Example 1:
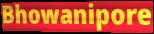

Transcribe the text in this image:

Bhowanipore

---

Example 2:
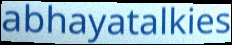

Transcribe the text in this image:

abhayatalkies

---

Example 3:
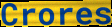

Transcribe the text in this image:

Crores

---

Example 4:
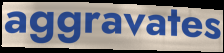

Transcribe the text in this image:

aggravates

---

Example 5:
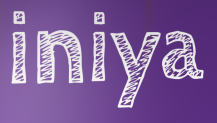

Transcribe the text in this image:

iniya